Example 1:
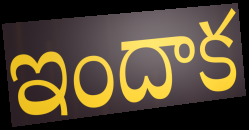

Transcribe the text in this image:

ఇందాక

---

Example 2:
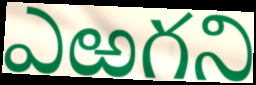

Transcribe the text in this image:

ఎఱగని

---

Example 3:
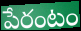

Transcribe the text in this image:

పేరంటం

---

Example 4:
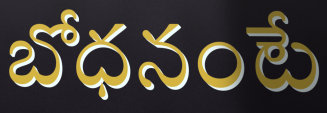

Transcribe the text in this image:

బోధనంటే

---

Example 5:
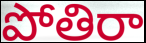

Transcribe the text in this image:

పోతిరా